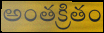
అంతక్రితం